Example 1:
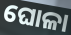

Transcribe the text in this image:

ଘୋଳା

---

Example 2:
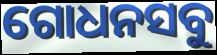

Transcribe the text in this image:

ଗୋଧନସବୁ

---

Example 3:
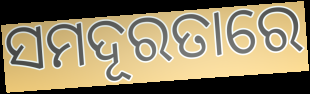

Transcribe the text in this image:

ସମଦୂରତାରେ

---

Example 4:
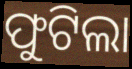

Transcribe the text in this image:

ଫୁଟିଲା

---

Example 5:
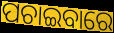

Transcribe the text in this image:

ପଚାଇବାରେ